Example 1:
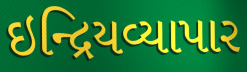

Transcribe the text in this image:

ઇન્દ્રિયવ્યાપાર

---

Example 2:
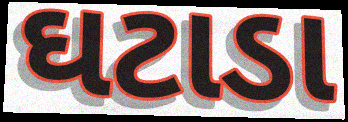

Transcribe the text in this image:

ઘટાડા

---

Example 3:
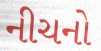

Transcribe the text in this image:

નીચનો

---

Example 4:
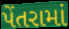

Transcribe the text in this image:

પેંતરામાં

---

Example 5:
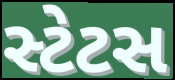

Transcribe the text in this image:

સ્ટેટસ